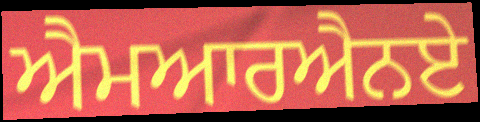
ਐਮਆਰਐਨਏ